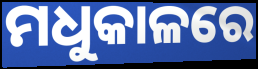
ମଧୁକାଳରେ